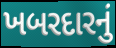
ખબરદારનું